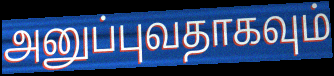
அனுப்புவதாகவும்